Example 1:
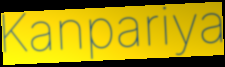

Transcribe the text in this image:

Kanpariya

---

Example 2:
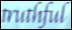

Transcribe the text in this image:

truthful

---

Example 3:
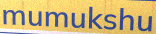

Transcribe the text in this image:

mumukshu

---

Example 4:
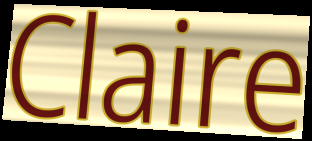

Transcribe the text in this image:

Claire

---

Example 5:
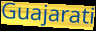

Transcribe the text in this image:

Guajarati